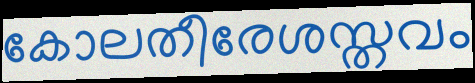
കോലതീരേശസ്തവം